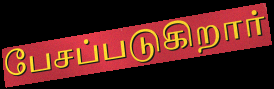
பேசப்படுகிறார்